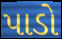
પાડો